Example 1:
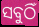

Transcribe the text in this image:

ସବୁଠିଁ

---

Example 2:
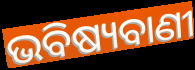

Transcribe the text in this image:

ଭବିଷ୍ୟବାଣୀ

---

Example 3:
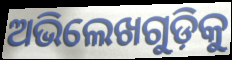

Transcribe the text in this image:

ଅଭିଲେଖଗୁଡ଼ିକୁ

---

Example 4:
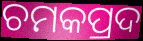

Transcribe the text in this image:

ଚମକପ୍ରଦ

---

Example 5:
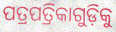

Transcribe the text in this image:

ପତ୍ରପତ୍ରିକାଗୁଡ଼ିକୁ